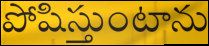
పోషిస్తుంటాను